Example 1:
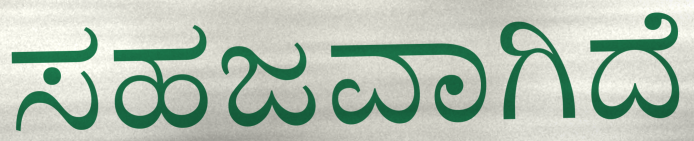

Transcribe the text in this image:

ಸಹಜವಾಗಿದೆ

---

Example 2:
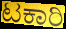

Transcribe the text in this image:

ಟಕಾರಿ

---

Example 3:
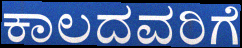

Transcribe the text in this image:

ಕಾಲದವರಿಗೆ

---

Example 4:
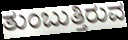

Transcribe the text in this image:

ತುಂಬುತ್ತಿರುವ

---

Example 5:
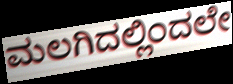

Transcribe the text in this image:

ಮಲಗಿದಲ್ಲಿಂದಲೇ